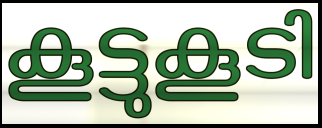
കൂട്ടുകൂടി